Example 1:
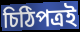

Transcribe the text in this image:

চিঠিপত্রই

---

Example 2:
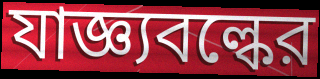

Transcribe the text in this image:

যাজ্ঞ্যবল্কের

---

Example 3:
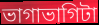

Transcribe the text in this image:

ভাগাভাগিটা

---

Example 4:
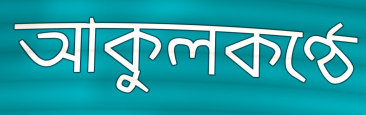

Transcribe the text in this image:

আকুলকণ্ঠে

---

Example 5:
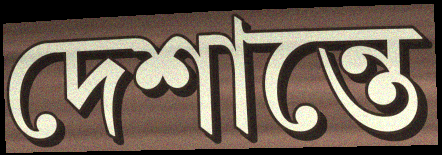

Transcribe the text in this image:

দেশান্তে